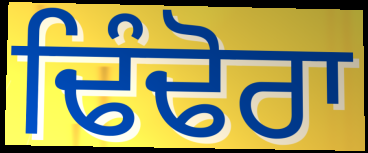
ਢਿੰਢੋਰਾ